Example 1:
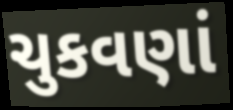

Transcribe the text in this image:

ચુકવણાં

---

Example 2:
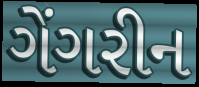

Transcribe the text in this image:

ગેંગરીન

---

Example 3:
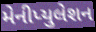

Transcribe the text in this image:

મેનીપ્યુલેશન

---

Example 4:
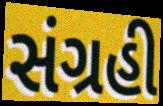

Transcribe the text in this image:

સંગ્રહી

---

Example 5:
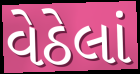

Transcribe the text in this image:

વેઠેલાં